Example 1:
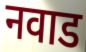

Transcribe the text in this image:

नवाड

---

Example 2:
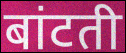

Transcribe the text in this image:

बांटती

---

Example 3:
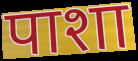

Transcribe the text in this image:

पाशा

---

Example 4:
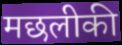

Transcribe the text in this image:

मछलीकी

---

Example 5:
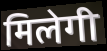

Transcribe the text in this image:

मिलेगी